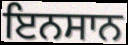
ਇਨਸਾਨ